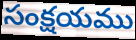
సంక్షయము